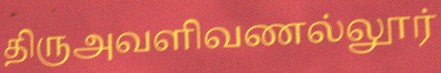
திருஅவளிவணல்லூர்